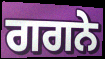
ਗਗਨੇ